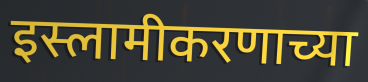
इस्लामीकरणाच्या